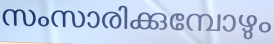
സംസാരിക്കുമ്പോഴും